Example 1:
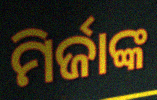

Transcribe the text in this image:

ମିର୍ଜାଙ୍କ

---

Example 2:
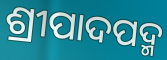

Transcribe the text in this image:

ଶ୍ରୀପାଦପଦ୍ମ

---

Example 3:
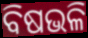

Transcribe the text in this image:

ବିଷଭଳି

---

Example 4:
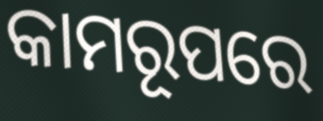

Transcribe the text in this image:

କାମରୂପରେ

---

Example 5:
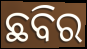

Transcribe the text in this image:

ଛବିର